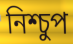
নিশ্চুপ